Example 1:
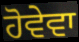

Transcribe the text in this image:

ਹੋਵੇਵਾ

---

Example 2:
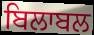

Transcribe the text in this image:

ਬਿਲਾਬਲ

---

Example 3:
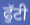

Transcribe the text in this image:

ਫੁੱਟੀ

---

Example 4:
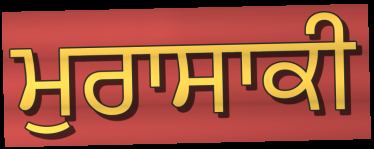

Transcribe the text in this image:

ਮੁਰਾਸਾਕੀ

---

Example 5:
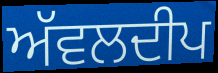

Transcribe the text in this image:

ਅੱਵਲਦੀਪ